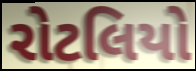
રોટલિયો